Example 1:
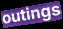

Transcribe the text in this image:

outings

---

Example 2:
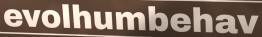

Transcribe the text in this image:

evolhumbehav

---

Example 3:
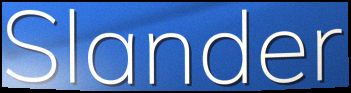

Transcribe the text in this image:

Slander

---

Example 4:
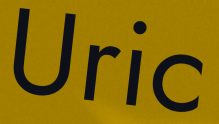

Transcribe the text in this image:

Uric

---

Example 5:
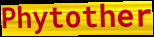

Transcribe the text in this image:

Phytother